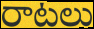
రాటలు